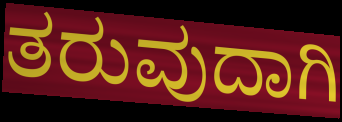
ತರುವುದಾಗಿ